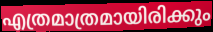
എത്രമാത്രമായിരിക്കും